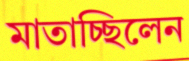
মাতাচ্ছিলেন